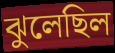
ঝুলেছিল